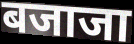
बजाजा